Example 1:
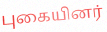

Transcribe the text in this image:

புகையினர்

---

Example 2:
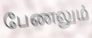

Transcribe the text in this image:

பேணலும்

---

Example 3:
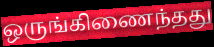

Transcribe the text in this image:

ஒருங்கிணைந்தது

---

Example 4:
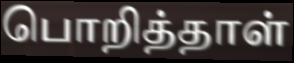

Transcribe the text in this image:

பொறித்தாள்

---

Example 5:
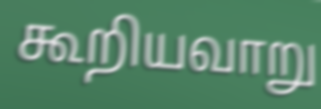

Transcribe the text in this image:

கூறியவாறு